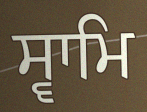
ਸ੍ਵਾਮਿ